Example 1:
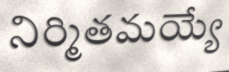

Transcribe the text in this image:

నిర్మితమయ్యే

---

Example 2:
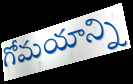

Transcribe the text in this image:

గోమయాన్ని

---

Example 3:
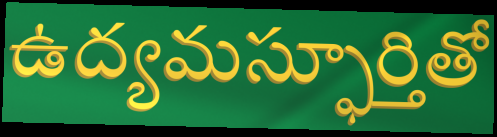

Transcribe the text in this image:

ఉద్యమస్ఫూర్తితో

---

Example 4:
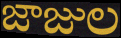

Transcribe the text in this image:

జాజుల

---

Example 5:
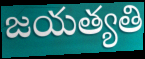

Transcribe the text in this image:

జయత్యతి